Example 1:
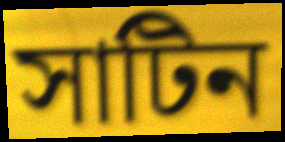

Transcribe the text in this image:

সাটিন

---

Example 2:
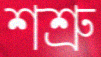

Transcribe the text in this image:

শশ্রু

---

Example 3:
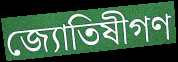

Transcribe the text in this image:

জ্যোতিষীগণ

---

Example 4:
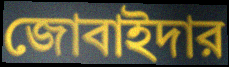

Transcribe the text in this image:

জোবাইদার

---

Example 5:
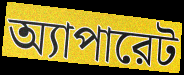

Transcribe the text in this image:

অ্যাপারেট